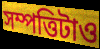
সম্পত্তিটাও